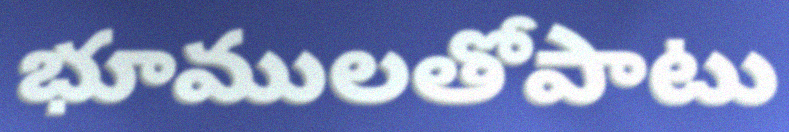
భూములతోపాటు